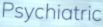
Psychiatric